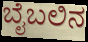
ಬೈಬಲಿನ